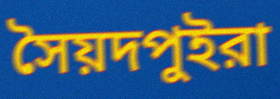
সৈয়দপুইরা